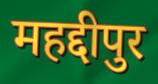
महद्दीपुर